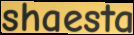
shaesta